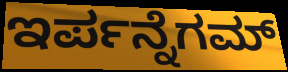
ಇರ್ಪನ್ನೆಗಮ್